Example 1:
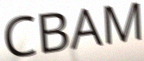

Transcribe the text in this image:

CBAM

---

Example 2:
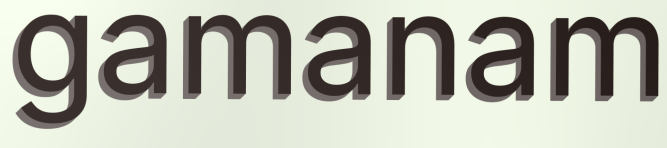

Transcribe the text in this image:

gamanam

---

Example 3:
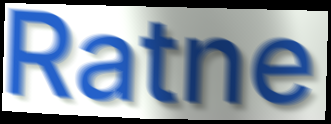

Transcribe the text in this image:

Ratne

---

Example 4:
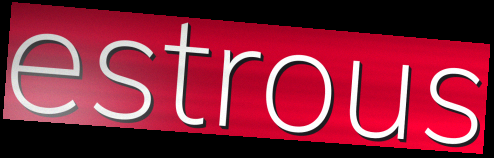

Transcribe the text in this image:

estrous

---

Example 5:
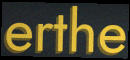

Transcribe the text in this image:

erthe